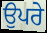
ਉਪਰੇ